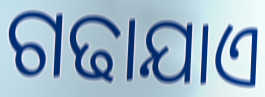
ଗଢାଯାଏ